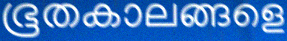
ഭൂതകാലങ്ങളെ